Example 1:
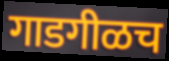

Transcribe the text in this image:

गाडगीळच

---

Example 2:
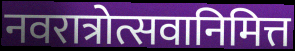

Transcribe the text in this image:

नवरात्रोत्सवानिमित्त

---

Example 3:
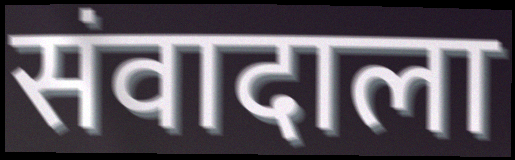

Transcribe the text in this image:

संवादाला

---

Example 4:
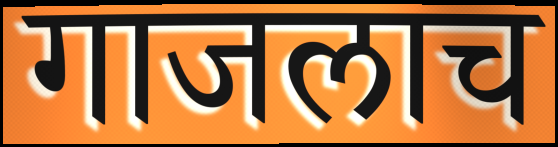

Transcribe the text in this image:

गाजलाच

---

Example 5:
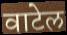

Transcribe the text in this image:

वाटेल